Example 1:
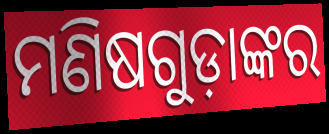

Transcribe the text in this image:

ମଣିଷଗୁଡ଼ାଙ୍କର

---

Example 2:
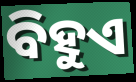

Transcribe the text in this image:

ବିହୁଏ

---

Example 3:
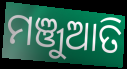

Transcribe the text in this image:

ମଞ୍ଜୁଆତି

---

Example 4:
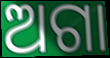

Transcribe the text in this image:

ଅଗା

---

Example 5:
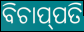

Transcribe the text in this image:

ବିଚାପ୍‌ପତି